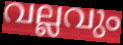
വല്ലവും